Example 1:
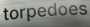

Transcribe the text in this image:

torpedoes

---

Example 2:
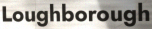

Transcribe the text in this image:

Loughborough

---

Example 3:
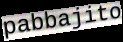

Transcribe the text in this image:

pabbajito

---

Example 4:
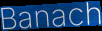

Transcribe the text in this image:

Banach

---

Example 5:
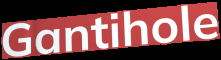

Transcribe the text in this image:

Gantihole